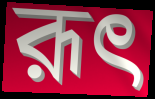
রূৎ